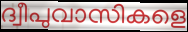
ദ്വീപുവാസികളെ